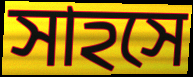
সাহসে